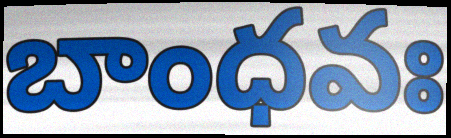
బాంధవః